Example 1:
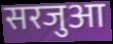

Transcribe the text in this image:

सरजुआ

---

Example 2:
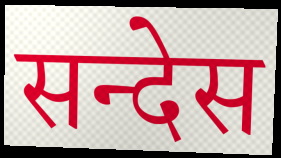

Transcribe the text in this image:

सन्देस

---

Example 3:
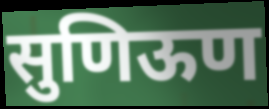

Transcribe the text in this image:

सुणिऊण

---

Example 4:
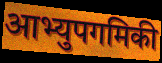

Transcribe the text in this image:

आभ्युपगमिकी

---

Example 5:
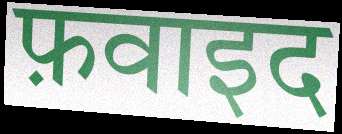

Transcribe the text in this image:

फ़वाइद